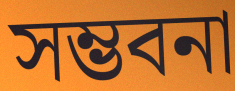
সম্ভবনা